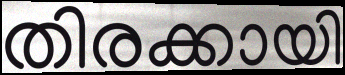
തിരക്കായി